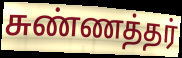
சுண்ணத்தர்